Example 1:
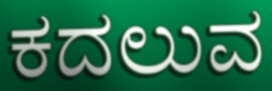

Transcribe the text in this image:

ಕದಲುವ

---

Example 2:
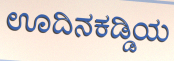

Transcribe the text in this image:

ಊದಿನಕಡ್ಡಿಯ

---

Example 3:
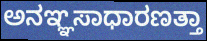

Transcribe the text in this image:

ಅನಞ್ಞಸಾಧಾರಣತ್ತಾ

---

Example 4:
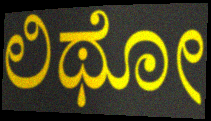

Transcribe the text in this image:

ಲಿಥೋ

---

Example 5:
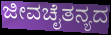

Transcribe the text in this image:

ಜೀವಚೈತನ್ಯದ